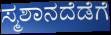
ಸ್ಮಶಾನದೆಡೆಗೆ